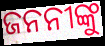
ଜନନୀଙ୍କୁ